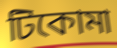
টিকোমা